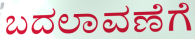
ಬದಲಾವಣೆಗೆ